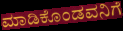
ಮಾಡಿಕೊಂಡವನಿಗೆ